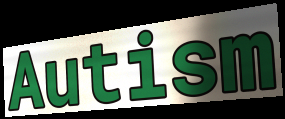
Autism